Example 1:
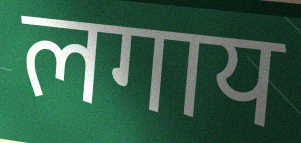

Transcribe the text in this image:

लगाय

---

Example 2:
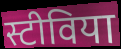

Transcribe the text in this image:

स्टीविया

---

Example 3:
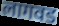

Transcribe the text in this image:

लागवड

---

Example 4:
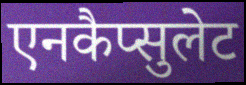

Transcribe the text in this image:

एनकैप्सुलेट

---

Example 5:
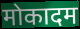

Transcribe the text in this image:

मोकादम